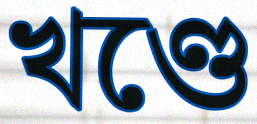
খণ্ডে